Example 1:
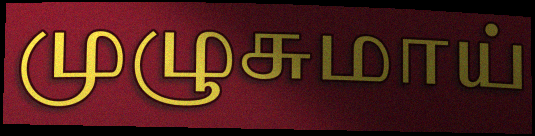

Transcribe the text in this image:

முழுசுமாய்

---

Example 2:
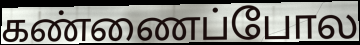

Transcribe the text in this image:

கண்ணைப்போல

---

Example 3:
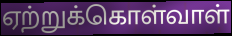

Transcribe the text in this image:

ஏற்றுக்கொள்வாள்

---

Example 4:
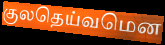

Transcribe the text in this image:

குலதெய்வமென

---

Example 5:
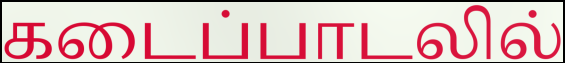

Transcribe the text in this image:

கடைப்பாடலில்